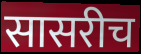
सासरीच